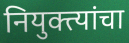
नियुक्त्यांचा